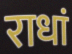
राधां